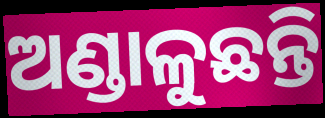
ଅଣ୍ଡାଳୁଛନ୍ତି